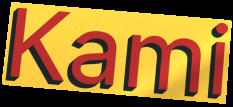
Kami